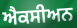
ਐਕਸੀਅਨ